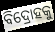
ବିଦ୍ରୋହକୁ